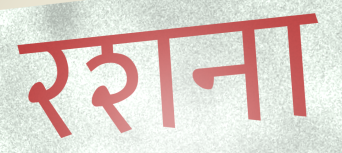
रशना